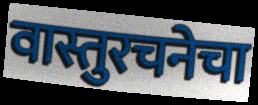
वास्तुरचनेचा